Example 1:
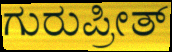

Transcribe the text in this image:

ಗುರುಪ್ರೀತ್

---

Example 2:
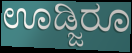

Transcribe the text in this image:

ಊಡ್ಜಿರೂ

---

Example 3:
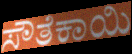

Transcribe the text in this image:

ಸೌತೆಕಾಯಿ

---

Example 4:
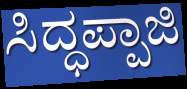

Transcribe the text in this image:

ಸಿದ್ಧಪ್ಪಾಜಿ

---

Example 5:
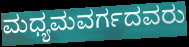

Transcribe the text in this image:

ಮಧ್ಯಮವರ್ಗದವರು